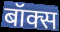
बॉक्‍स